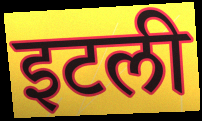
इटली